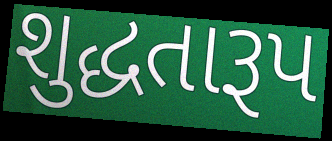
શુદ્ધતારૂપ